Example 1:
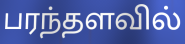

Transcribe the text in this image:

பரந்தளவில்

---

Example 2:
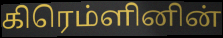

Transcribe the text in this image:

கிரெம்ளினின்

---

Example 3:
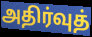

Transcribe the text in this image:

அதிர்வுத்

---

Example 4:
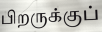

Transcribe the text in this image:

பிறருக்குப்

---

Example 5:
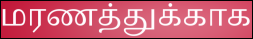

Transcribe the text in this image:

மரணத்துக்காக